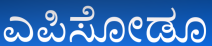
ಎಪಿಸೋಡೂ